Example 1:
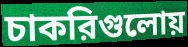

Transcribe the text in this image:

চাকরিগুলোয়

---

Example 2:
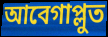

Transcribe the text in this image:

আবেগাপ্লুত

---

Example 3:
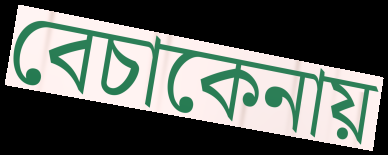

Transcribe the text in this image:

বেচাকেনায়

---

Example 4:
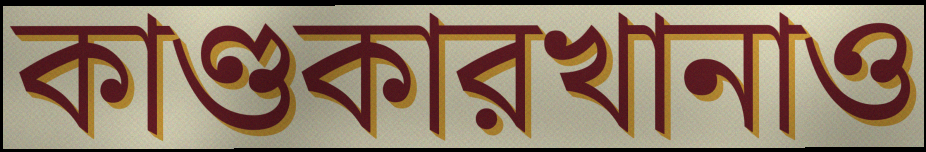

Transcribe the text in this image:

কাণ্ডকারখানাও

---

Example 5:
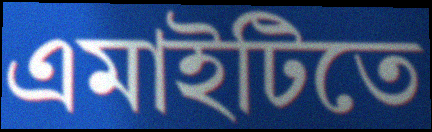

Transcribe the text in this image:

এমাইটিতে